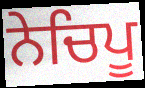
ਨੇਚਿਪੂ